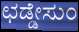
ಛಡ್ಡೇಸುಂ